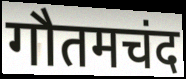
गौतमचंद